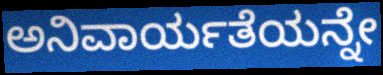
ಅನಿವಾರ್ಯತೆಯನ್ನೇ